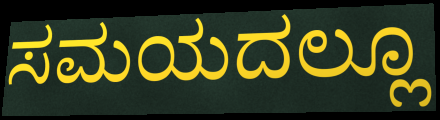
ಸಮಯದಲ್ಲೂ